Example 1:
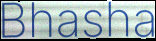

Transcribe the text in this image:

Bhasha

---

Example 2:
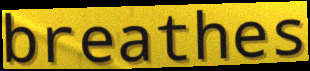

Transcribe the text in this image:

breathes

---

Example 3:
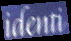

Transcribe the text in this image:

identi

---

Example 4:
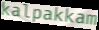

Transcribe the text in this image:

kalpakkam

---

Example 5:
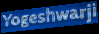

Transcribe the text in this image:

Yogeshwarji